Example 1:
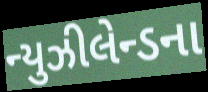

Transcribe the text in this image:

ન્યુઝીલેન્ડના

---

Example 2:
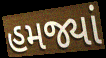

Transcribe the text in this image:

હમજ્યાં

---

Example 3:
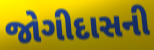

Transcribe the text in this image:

જોગીદાસની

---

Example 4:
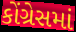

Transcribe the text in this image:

કોંગ્રેસમાં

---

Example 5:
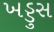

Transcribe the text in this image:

ખડ્ડુસ